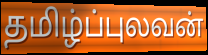
தமிழ்ப்புலவன்